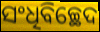
ସଂଧିବିଚ୍ଛେଦ